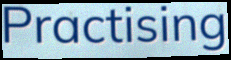
Practising